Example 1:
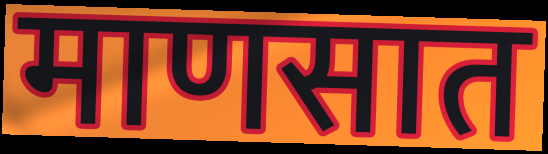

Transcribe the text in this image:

माणसात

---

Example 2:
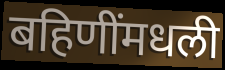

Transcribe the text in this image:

बहिणींमधली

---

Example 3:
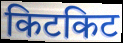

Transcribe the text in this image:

किटकिट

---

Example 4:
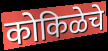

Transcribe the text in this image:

कोकिळेचे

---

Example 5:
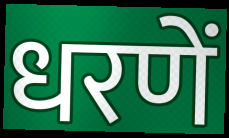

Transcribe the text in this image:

धरणें